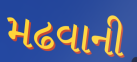
મઢવાની